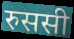
रुससी